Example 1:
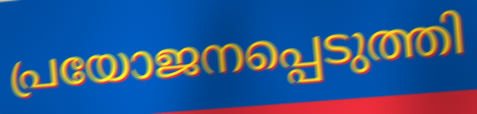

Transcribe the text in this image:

പ്രയോജനപ്പെടുത്തി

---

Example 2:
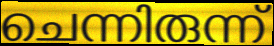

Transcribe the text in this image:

ചെന്നിരുന്ന്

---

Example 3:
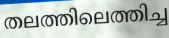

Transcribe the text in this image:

തലത്തിലെത്തിച്ച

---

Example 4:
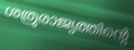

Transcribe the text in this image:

ശത്രുരാജ്യത്തിന്റെ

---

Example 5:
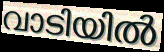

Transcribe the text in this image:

വാടിയിൽ